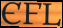
EFL